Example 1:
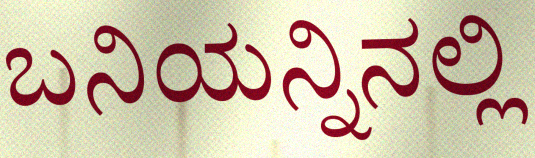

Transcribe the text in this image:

ಬನಿಯನ್ನಿನಲ್ಲಿ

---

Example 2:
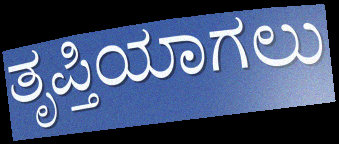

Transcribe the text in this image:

ತೃಪ್ತಿಯಾಗಲು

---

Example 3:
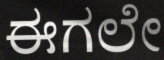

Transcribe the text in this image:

ಈಗಲೇ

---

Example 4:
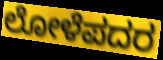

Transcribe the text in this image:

ಲೋಳೆಪದರ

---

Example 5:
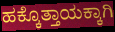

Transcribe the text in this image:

ಹಕ್ಕೊತ್ತಾಯಕ್ಕಾಗಿ